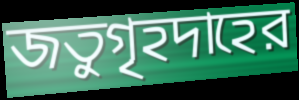
জতুগৃহদাহের